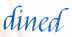
dined